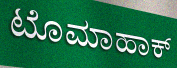
ಟೊಮಾಹಾಕ್